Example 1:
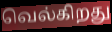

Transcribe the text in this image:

வெல்கிறது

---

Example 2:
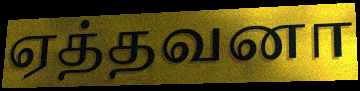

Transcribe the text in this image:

ஏத்தவனா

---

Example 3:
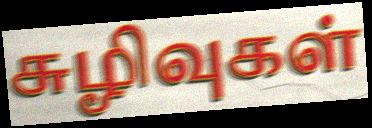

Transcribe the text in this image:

சுழிவுகள்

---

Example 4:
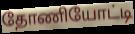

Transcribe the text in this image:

தோணியோட்டி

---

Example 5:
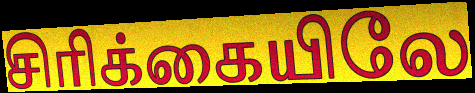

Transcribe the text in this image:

சிரிக்கையிலே